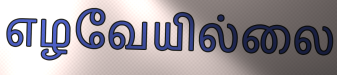
எழவேயில்லை